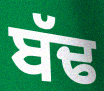
ਬੱਢ